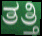
ತತ್ತಿ